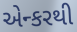
એન્કરથી